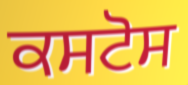
ਕਸਟੋਸ